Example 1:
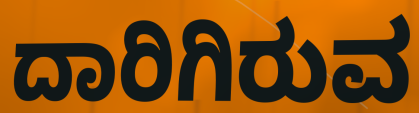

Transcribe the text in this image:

ದಾರಿಗಿರುವ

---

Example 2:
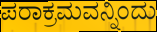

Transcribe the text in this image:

ಪರಾಕ್ರಮವನ್ನಿಂದು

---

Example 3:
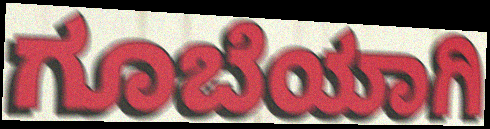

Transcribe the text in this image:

ಗೂಬೆಯಾಗಿ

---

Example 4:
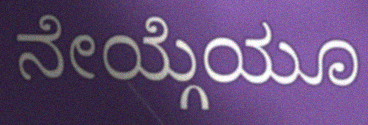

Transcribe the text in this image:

ನೇಯ್ಗೆಯೂ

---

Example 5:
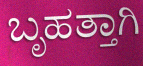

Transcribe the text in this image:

ಬೃಹತ್ತಾಗಿ